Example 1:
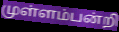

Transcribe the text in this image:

முள்ளம்பன்றி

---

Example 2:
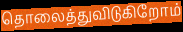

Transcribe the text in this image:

தொலைத்துவிடுகிறோம்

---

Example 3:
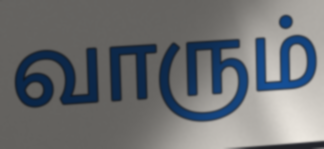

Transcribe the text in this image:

வாரும்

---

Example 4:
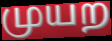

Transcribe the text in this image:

முயற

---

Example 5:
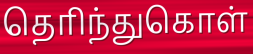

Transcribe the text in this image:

தெரிந்துகொள்